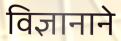
विज्ञानाने